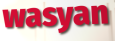
wasyan